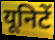
यूनिटें